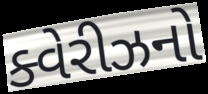
ક્વેરીઝનો